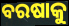
ବରଷାକୁ